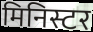
मिनिस्टर